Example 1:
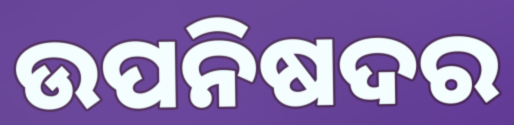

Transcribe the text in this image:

ଉପନିଷଦର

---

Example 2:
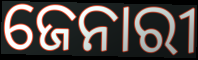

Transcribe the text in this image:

ଜେନାରୀ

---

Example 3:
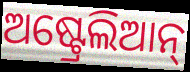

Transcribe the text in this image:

ଅଷ୍ଟ୍ରେଲିଆନ୍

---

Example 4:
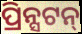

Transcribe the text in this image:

ପ୍ରିନ୍ସଟନ୍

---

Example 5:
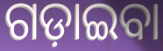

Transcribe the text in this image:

ଗଡ଼ାଇବା